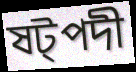
ষট্‌পদী